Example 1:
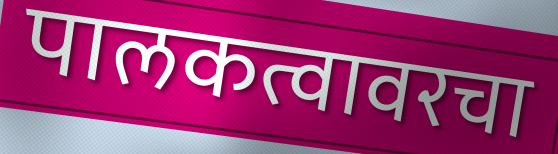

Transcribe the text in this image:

पालकत्वावरचा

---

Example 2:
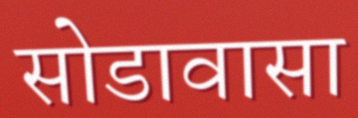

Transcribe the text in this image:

सोडावासा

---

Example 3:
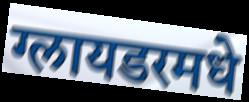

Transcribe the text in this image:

ग्लायडरमधे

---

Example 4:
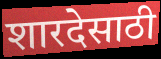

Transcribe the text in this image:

शारदेसाठी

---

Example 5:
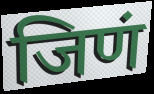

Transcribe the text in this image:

जिणं